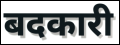
बदकारी